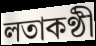
লতাকণ্ঠী